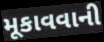
મૂકાવવાની